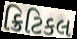
ક્રિટિકલ